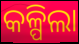
କଳ୍ପିଲା